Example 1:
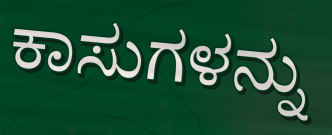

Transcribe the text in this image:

ಕಾಸುಗಳನ್ನು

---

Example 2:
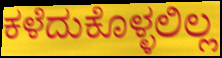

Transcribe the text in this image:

ಕಳೆದುಕೊಳ್ಳಲಿಲ್ಲ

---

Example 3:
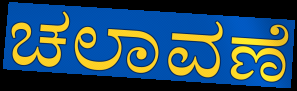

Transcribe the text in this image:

ಚಲಾವಣೆ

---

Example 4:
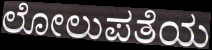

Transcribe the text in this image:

ಲೋಲುಪತೆಯ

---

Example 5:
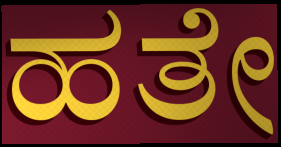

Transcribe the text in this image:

ಹತೇ